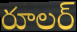
రూలర్